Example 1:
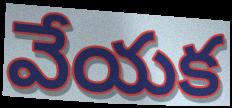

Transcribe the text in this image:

వేయక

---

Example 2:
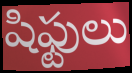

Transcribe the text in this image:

షిఫ్టులు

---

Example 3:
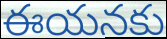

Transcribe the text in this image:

ఈయనకు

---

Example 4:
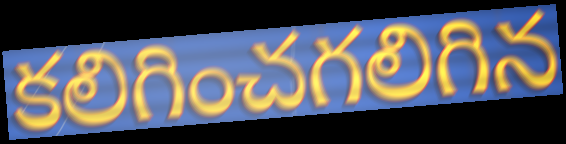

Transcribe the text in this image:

కలిగించగలిగిన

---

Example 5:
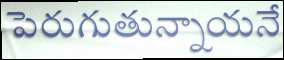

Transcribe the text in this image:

పెరుగుతున్నాయనే